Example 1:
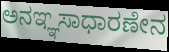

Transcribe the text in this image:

ಅನಞ್ಞಸಾಧಾರಣೇನ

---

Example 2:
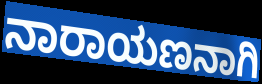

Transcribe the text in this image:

ನಾರಾಯಣನಾಗಿ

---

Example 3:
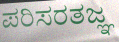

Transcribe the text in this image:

ಪರಿಸರತಜ್ಞ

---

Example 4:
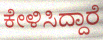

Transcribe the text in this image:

ಕೇಳಿಸಿದ್ದಾರೆ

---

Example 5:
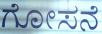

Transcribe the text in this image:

ಗೋಸನೆ